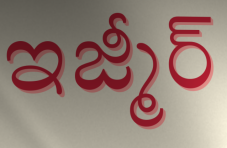
ఇజ్మీర్